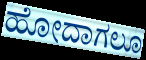
ಹೋದಾಗಲೂ